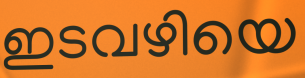
ഇടവഴിയെ